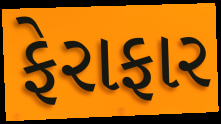
ફેરાફાર